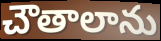
చౌతాలాను